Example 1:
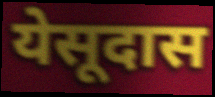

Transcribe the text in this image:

येसूदास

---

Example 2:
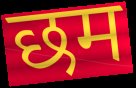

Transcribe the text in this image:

छम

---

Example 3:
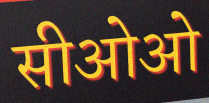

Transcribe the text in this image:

सीओओ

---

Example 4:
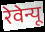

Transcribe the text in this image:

रेवेन्यू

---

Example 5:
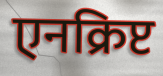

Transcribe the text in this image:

एनक्रिप्ट